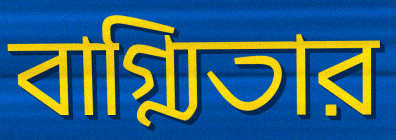
বাগ্মিতার